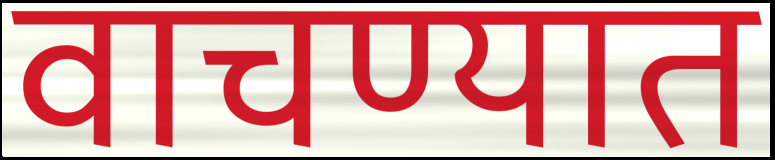
वाचण्यात